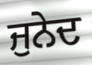
ਜੁਨੇਦ